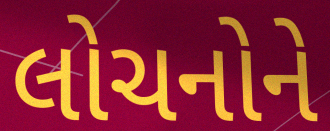
લોચનોને